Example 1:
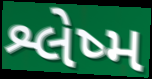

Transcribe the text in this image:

શ્લેષ્મ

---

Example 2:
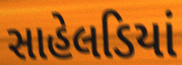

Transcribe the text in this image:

સાહેલડિયાં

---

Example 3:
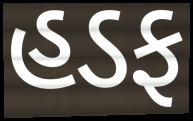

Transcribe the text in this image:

હડફ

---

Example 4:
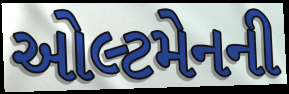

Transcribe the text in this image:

ઓલ્ટમેનની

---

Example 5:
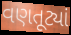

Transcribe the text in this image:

વણતૂટ્યાં